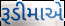
રૂડીમાએ